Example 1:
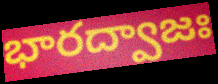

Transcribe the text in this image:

భారద్వాజః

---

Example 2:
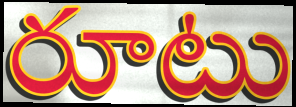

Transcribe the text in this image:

రూటు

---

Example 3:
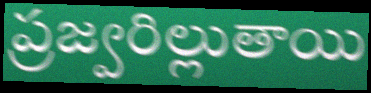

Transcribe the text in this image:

ప్రజ్వరిల్లుతాయి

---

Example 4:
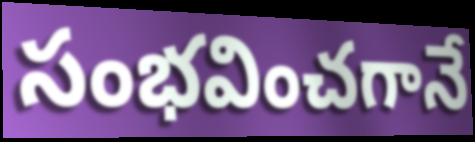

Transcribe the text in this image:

సంభవించగానే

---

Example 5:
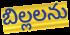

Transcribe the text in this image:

బిల్లలను